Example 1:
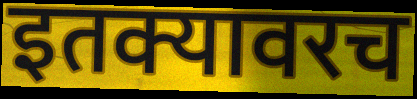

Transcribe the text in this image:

इतक्यावरच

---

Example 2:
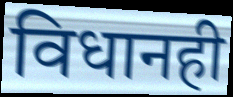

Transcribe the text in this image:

विधानही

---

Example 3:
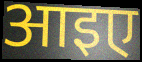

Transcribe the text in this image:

आइए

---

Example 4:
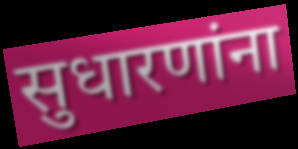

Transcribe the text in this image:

सुधारणांना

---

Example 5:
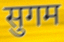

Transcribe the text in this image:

सुगम